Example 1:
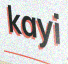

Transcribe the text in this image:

kayi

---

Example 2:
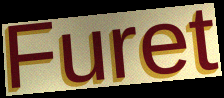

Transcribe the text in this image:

Furet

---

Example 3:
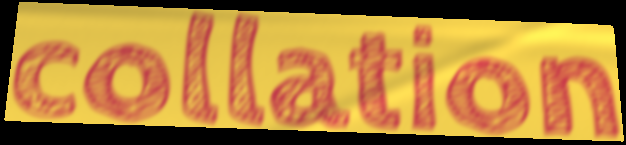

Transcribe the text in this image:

collation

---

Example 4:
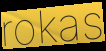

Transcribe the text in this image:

rokas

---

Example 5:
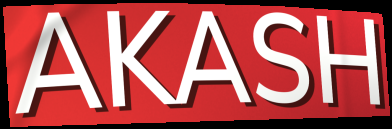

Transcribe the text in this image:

AKASH